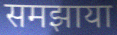
समझाया